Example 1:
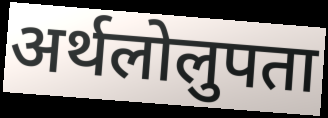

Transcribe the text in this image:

अर्थलोलुपता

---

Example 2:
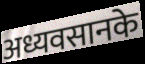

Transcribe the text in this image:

अध्यवसानके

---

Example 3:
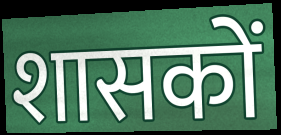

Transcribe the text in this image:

शासकों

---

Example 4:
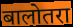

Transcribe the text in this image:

बालोतरा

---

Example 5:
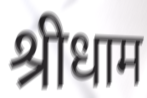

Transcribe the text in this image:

श्रीधाम